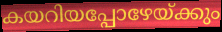
കയറിയപ്പോഴേയ്ക്കും